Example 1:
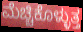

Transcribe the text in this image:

ಮೆಚ್ಚಿಕೊಳ್ಳುತ್ತ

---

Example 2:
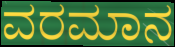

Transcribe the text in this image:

ವರಮಾನ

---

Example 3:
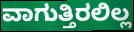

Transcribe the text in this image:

ವಾಗುತ್ತಿರಲಿಲ್ಲ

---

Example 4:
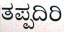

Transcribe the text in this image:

ತಪ್ಪದಿರಿ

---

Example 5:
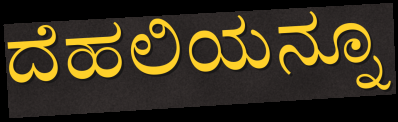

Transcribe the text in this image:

ದೆಹಲಿಯನ್ನೂ